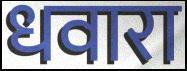
धवारा